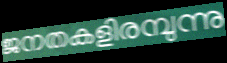
ജനതകളിരമ്പുന്നു